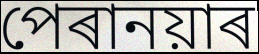
পেৰানয়াৰ